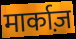
मार्काज़